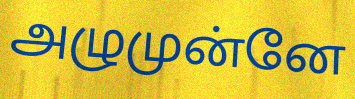
அழுமுன்னே